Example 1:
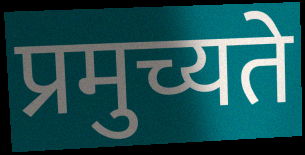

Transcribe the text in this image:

प्रमुच्यते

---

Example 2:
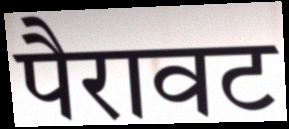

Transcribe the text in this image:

पैरावट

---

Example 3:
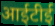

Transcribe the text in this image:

आईटीई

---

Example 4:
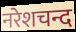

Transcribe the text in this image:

नरेशचन्द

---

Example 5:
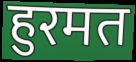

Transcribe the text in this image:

हुरमत